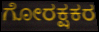
ಗೋರಕ್ಷಕರ